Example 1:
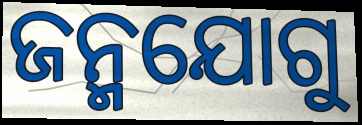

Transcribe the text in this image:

ଜନ୍ମଯୋଗୁ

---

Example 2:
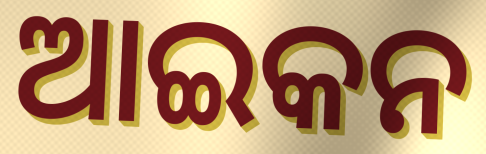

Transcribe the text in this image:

ଆଇକନ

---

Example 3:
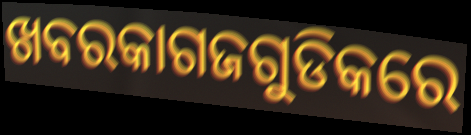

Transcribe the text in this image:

ଖବରକାଗଜଗୁଡିକରେ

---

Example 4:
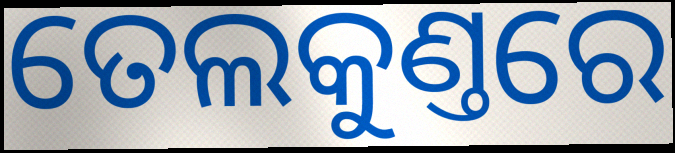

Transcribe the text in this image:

ତେଲକୁଣ୍ତରେ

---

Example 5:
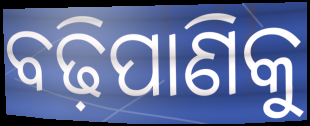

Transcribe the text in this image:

ବଢ଼ିପାଣିକୁ